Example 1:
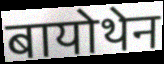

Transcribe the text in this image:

बायोथेन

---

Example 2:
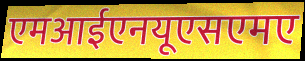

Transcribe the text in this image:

एमआईएनयूएसएमए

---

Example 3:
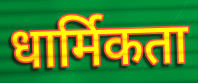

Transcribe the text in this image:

धार्मिकता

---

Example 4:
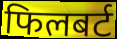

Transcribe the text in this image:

फिलबर्ट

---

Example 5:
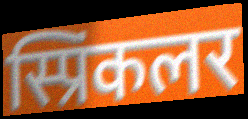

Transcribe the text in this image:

स्प्रिंकलर